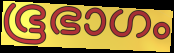
ഭൂഭാഗം